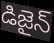
డిజైన్